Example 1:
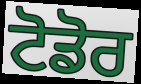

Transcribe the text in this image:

ਟੋਡੋਰ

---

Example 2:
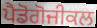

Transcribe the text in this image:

ਪੈਡੋਗੋਜੀਕਲ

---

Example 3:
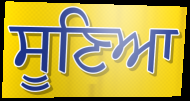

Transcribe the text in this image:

ਸੂਣਿਆ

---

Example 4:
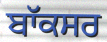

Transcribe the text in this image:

ਬਾੱਕਸਰ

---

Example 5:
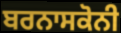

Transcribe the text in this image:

ਬਰਨਾਸਕੋਨੀ